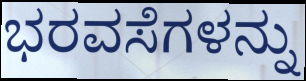
ಭರವಸೆಗಳನ್ನು